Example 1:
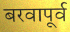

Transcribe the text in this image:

बरवापूर्व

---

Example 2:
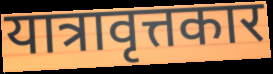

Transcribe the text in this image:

यात्रावृत्तकार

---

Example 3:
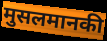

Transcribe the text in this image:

मुसलमानकी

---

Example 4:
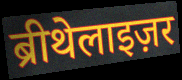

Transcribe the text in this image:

ब्रीथेलाइज़र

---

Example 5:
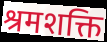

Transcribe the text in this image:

श्रमशक्ति